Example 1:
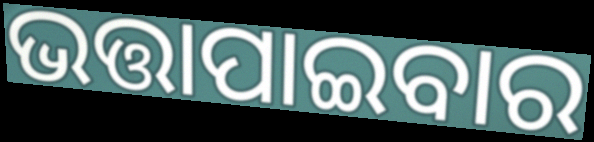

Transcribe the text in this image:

ଭତ୍ତାପାଇବାର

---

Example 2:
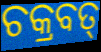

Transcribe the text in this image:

ଚକ୍ରବତ୍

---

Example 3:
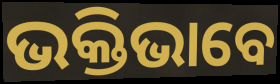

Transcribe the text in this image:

ଭକ୍ତିଭାବେ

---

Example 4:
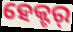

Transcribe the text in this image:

ହେକ୍ଟର୍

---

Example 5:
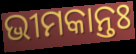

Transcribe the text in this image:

ଭୀମକାନ୍ତଃ